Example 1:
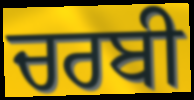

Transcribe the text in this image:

ਚਰਬੀ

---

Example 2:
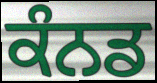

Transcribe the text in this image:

ਕੰਨਡ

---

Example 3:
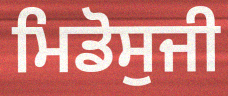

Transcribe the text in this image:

ਮਿਡੋਸੁਜੀ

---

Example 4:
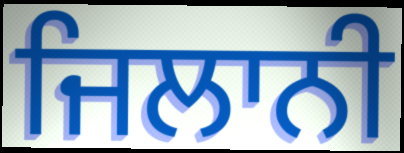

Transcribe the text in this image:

ਜਿਲਾਨੀ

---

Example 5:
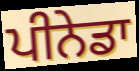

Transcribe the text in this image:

ਪੀਨੇਡਾ